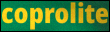
coprolite